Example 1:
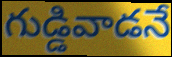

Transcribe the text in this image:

గుడ్డివాడనే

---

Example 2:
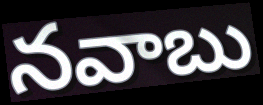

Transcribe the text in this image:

నవాబు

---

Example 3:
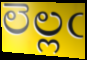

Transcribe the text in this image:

లెల్లఁ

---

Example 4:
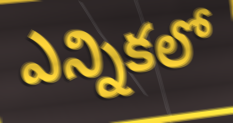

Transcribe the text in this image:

ఎన్నికలో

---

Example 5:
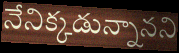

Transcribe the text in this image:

నేనిక్కడున్నానని